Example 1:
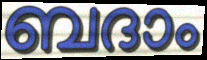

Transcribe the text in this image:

ബദാം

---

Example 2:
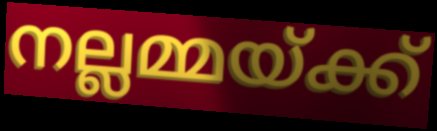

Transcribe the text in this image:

നല്ലമ്മയ്ക്ക്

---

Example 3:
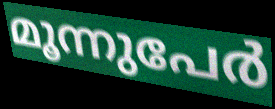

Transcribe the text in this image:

മൂന്നുപേർ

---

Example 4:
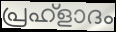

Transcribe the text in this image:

പ്രഹ്ളാദം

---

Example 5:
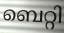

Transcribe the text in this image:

ബെറ്റി